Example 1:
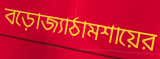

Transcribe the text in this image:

বড়োজ্যাঠামশায়ের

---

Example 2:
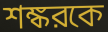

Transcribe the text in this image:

শঙ্করকে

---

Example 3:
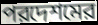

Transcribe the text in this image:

পরদেশমের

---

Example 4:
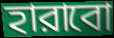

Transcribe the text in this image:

হারাবো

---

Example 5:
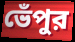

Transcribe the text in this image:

ভেঁপুর